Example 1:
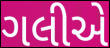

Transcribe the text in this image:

ગલીએ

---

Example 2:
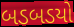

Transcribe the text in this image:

બડબડયો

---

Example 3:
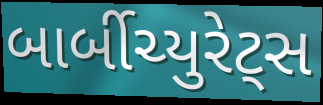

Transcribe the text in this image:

બાર્બીચ્યુરેટ્સ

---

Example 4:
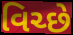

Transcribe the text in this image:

વિચ્છે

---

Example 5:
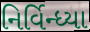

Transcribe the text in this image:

નિર્વિન્ધ્યા